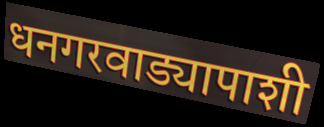
धनगरवाड्यापाशी